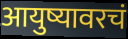
आयुष्यावरचं